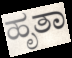
ಹೃತಾ